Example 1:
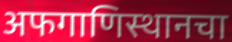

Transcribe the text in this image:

अफगाणिस्थानचा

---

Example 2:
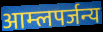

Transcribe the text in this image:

आम्लपर्जन्य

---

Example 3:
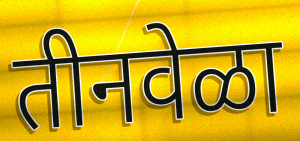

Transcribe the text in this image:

तीनवेळा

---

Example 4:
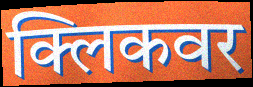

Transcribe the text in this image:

क्लिकवर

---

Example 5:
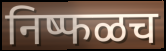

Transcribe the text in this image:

निष्फळच